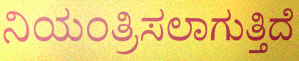
ನಿಯಂತ್ರಿಸಲಾಗುತ್ತಿದೆ